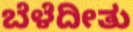
ಬೆಳೆದೀತು